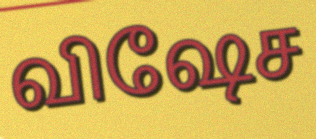
விஷேச